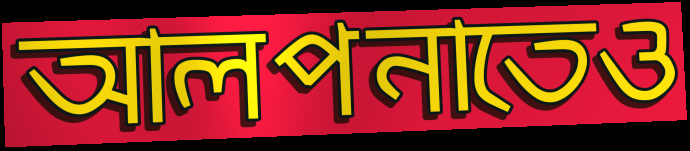
আলপনাতেও